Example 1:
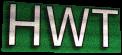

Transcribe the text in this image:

HWT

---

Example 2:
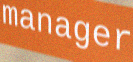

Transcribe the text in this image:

manager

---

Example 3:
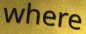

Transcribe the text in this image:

where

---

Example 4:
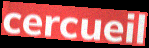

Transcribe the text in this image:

cercueil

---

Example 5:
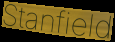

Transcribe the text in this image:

Stanfield